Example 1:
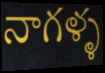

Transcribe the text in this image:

నాగళ్ళ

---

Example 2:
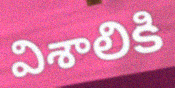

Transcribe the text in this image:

విశాలికి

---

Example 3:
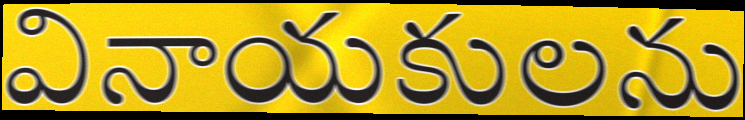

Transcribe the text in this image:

వినాయకులను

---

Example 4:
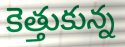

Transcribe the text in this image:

కెత్తుకున్న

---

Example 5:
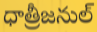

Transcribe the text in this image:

ధాత్రీజనుల్